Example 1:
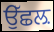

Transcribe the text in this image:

ਉੱਛਲ਼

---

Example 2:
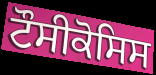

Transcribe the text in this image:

ਟੌਸੀਕੋਸਿਸ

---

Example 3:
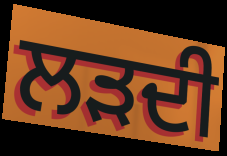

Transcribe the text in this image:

ਲੜਦੀ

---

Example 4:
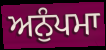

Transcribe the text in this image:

ਅਨੁੰਪਮਾ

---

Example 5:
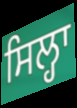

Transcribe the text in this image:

ਸਿਲ੍ਹਾ